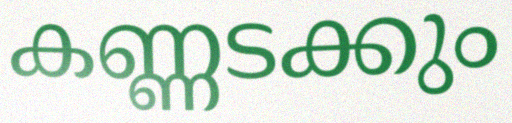
കണ്ണടക്കും